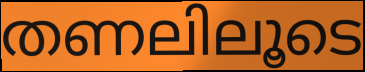
തണലിലൂടെ